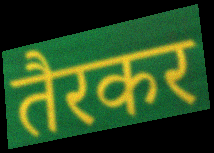
तैरकर